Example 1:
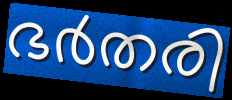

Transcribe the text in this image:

ഭർതരി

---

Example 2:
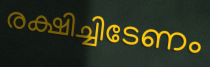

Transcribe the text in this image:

രക്ഷിച്ചിടേണം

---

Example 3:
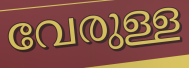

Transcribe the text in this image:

വേരുള്ള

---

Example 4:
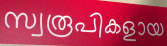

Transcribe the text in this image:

സ്വരൂപികളായ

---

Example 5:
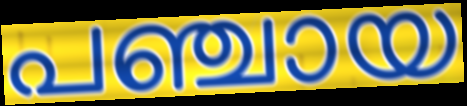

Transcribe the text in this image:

പഞ്ചായ